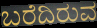
ಬರೆದಿರುವ